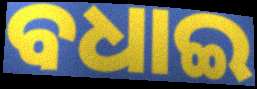
ବଧାଇ